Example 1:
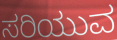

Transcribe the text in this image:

ಸರಿಯುವ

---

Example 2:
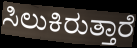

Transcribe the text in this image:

ಸಿಲುಕಿರುತ್ತಾರೆ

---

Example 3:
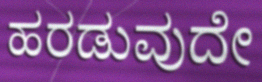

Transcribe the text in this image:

ಹರಡುವುದೇ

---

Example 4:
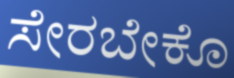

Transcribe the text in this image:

ಸೇರಬೇಕೊ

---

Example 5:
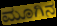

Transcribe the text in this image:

ಮೂಗಿನ